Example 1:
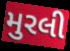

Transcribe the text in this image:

મુરલી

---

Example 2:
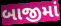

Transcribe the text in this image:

બાજીમાં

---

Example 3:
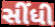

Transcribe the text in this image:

સીંધી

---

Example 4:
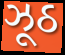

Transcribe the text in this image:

ઝૂઠ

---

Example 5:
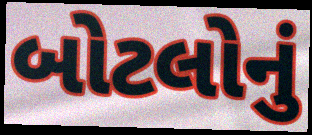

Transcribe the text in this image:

બોટલોનું